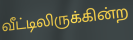
வீட்டிலிருக்கின்ற